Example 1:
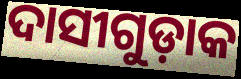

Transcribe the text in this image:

ଦାସୀଗୁଡ଼ାକ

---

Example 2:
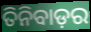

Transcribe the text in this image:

ତିନିବାଡ଼ର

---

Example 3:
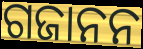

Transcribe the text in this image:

ଗଜାନନ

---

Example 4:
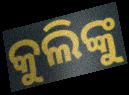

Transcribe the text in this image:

କୁଲିଙ୍କୁ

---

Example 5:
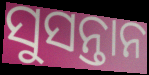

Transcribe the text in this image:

ସୁସନ୍ତାନ